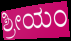
ಶ್ರೀಯಂ